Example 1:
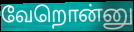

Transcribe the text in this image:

வேறொன்னு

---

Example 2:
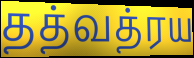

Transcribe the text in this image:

தத்வத்ரய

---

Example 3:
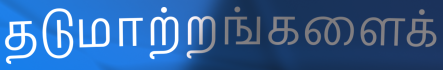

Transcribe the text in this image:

தடுமாற்றங்களைக்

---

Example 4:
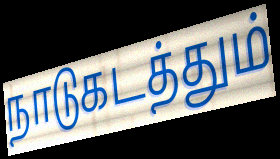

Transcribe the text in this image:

நாடுகடத்தும்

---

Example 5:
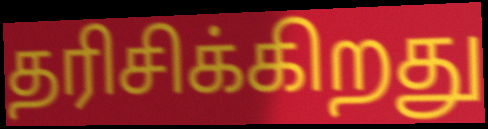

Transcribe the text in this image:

தரிசிக்கிறது